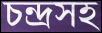
চন্দ্রসহ